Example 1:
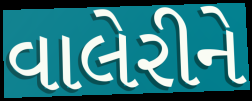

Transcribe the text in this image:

વાલેરીને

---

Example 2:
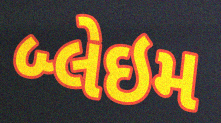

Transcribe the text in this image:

બ્લેઇમ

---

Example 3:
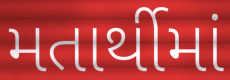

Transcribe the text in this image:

મતાર્થીમાં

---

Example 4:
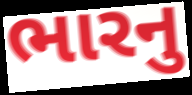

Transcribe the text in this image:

ભારનુ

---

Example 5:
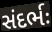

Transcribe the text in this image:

સંદર્ભઃ